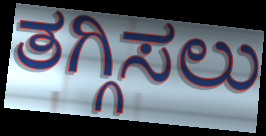
ತಗ್ಗಿಸಲು